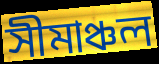
সীমাঞ্চল